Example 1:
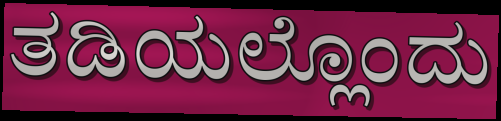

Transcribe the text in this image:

ತಡಿಯಲ್ಲೊಂದು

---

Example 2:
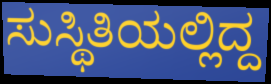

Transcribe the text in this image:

ಸುಸ್ಥಿತಿಯಲ್ಲಿದ್ದ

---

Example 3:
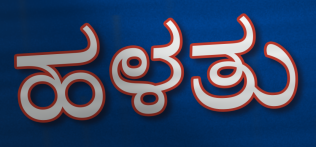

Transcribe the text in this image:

ಹಳತು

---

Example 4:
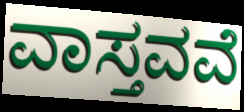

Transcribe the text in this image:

ವಾಸ್ತವವೆ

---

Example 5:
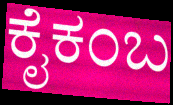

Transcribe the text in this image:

ಕೈಕಂಬ